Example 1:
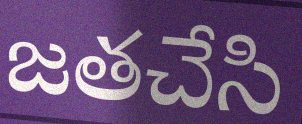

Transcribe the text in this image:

జతచేసి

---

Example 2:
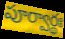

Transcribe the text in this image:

పూర్వార్థః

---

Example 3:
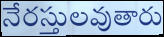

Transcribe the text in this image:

నేరస్తులవుతారు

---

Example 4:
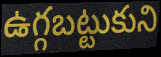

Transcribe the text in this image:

ఉగ్గబట్టుకుని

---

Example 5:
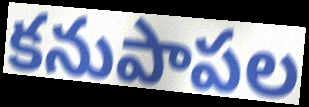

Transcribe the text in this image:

కనుపాపల